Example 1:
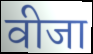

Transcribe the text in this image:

वीजा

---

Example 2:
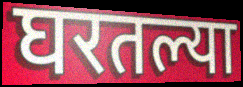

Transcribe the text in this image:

घरतल्या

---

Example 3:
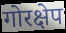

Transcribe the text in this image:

गोरक्षेप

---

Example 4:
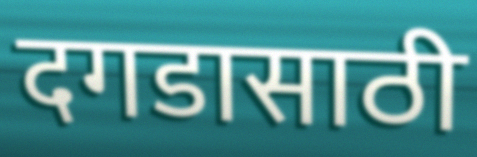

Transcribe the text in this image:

दगडासाठी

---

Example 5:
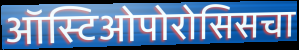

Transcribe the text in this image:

ऑस्टिओपोरोसिसचा